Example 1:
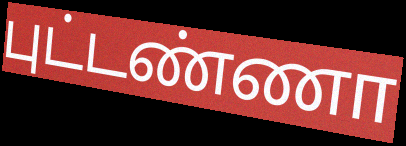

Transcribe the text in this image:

புட்டண்ணா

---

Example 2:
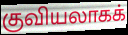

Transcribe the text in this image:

குவியலாகக்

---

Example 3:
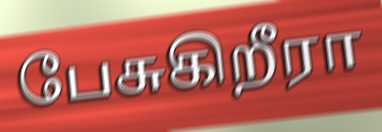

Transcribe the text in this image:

பேசுகிறீரா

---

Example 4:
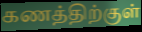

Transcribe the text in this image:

கணத்திற்குள்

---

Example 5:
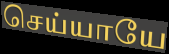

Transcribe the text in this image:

செய்யாயே